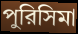
পুরিসিমা